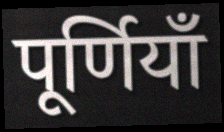
पूर्णियाँ